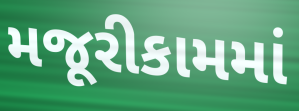
મજૂરીકામમાં